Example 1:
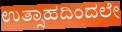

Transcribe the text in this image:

ಉತ್ಸಾಹದಿಂದಲೇ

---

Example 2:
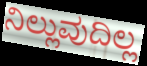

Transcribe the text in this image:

ನಿಲ್ಲುವುದಿಲ್ಲ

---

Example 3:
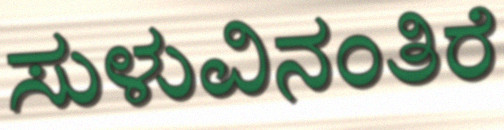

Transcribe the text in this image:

ಸುಳುವಿನಂತಿರೆ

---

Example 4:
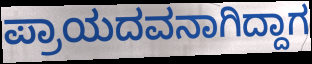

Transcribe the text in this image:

ಪ್ರಾಯದವನಾಗಿದ್ದಾಗ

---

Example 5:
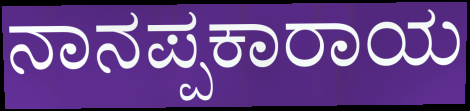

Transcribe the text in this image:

ನಾನಪ್ಪಕಾರಾಯ